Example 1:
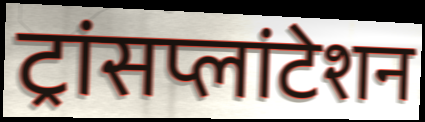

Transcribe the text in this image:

ट्रांसप्लांटेशन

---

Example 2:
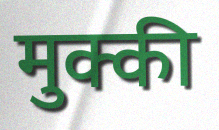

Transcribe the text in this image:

मुक्की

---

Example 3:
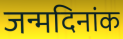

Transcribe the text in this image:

जन्मदिनांक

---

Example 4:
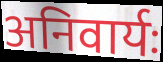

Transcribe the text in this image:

अनिवार्यः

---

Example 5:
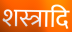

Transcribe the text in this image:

शस्त्रादि